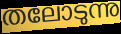
തലോടുന്നു